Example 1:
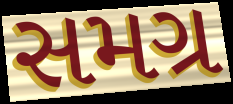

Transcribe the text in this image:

સમગ્ર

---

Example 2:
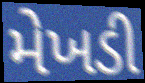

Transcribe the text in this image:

મેખડી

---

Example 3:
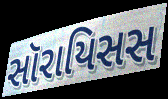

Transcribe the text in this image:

સૉરાયિસસ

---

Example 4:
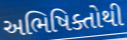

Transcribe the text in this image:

અભિષિક્તોથી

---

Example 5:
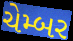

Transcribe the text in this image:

ચેમ્બર